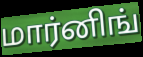
மார்னிங்